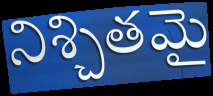
నిశ్చితమై